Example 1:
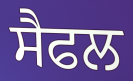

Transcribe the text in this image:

ਸੈਫਲ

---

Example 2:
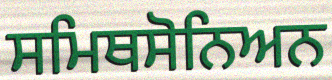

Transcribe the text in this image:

ਸਮਿਥਸੋਨਿਅਨ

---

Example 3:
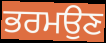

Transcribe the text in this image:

ਭਰਮਉਣ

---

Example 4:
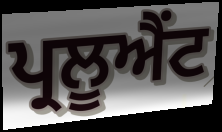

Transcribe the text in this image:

ਪ੍ਰਲੂਐਂਟ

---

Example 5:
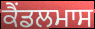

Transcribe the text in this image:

ਕੈਂਡਲਮਾਸ